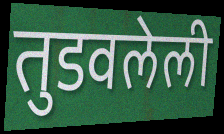
तुडवलेली